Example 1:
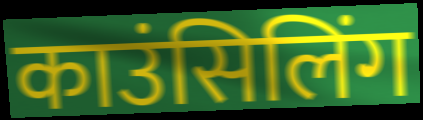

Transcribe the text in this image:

काउंसिलिंग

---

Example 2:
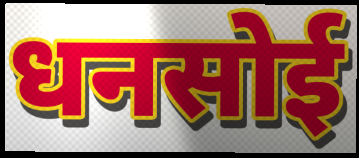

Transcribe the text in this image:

धनसोई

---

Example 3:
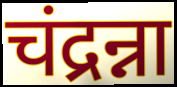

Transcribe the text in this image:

चंद्रन्ना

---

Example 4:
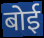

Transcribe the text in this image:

बोई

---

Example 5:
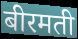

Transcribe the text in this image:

बीरमती